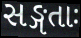
સઙ્ગતાઃ